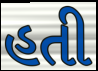
હતી